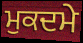
ਮੁਕਦਮੇ